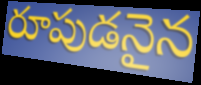
రూపుడనైన